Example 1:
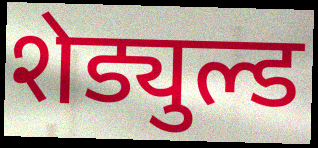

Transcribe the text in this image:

शेड्युल्ड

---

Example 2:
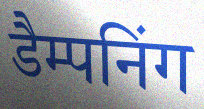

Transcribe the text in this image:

डैम्पनिंग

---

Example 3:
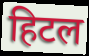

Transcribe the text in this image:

हिटल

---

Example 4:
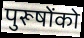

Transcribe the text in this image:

पुरूषोंको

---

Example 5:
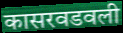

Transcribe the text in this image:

कासरवडवली